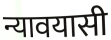
न्यावयासी